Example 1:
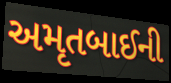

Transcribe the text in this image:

અમૃતબાઈની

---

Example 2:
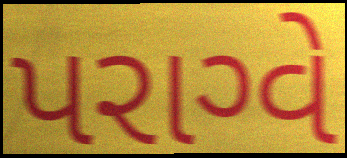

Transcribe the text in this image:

પરાગ્વે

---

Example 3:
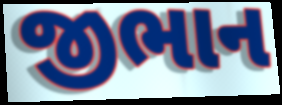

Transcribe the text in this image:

જીભાન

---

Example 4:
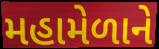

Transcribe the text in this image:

મહામેળાને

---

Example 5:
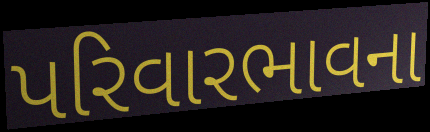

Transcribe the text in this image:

પરિવારભાવના